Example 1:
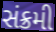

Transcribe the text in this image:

સંક્રમી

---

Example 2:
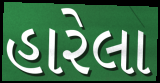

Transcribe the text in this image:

હારેલા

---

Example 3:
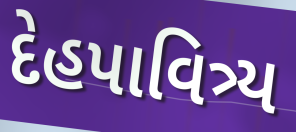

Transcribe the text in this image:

દેહપાવિત્ર્ય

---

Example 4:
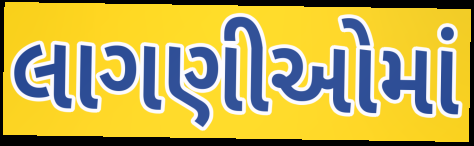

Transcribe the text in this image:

લાગણીઓમાં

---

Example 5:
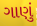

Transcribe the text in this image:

ગાણું